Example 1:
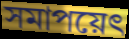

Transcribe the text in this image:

সমাপয়েৎ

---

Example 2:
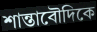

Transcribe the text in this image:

শান্তাবৌদিকে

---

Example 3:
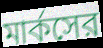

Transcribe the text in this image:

মার্কসের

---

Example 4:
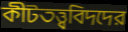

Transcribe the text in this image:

কীটতত্ত্ববিদদের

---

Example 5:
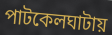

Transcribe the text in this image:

পাটকেলঘাটায়